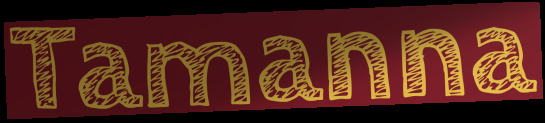
Tamanna